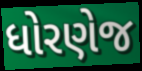
ધોરણેજ